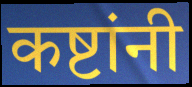
कष्टांनी